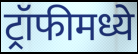
ट्रॉफीमध्ये